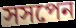
সসপেন